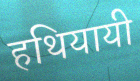
हथियायी